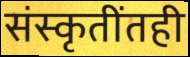
संस्कृतींतही